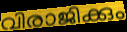
വിരാജിക്കും